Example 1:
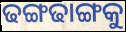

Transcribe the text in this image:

ଢଙ୍ଗଢାଙ୍ଗକୁ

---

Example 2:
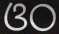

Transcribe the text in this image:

ଓଠ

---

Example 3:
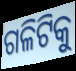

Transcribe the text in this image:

ଗଳିଟିକୁ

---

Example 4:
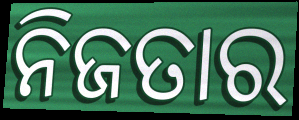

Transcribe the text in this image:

ନିଜତାର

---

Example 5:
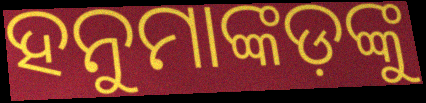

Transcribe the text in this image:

ହନୁମାଙ୍କଡ଼ଙ୍କୁ